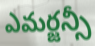
ఎమర్జన్సీ